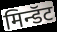
मिन्डॅट